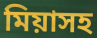
মিয়াসহ